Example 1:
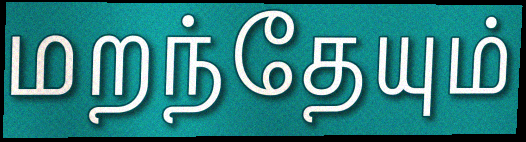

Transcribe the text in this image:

மறந்தேயும்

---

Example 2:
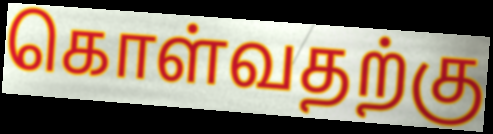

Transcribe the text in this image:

கொள்வதற்கு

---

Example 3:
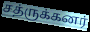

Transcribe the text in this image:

சத்ருக்கனர்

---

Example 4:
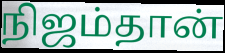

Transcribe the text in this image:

நிஜம்தான்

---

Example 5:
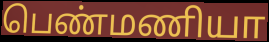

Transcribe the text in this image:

பெண்மணியா